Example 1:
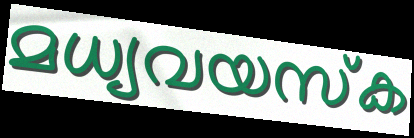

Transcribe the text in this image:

മധ്യവയസ്ക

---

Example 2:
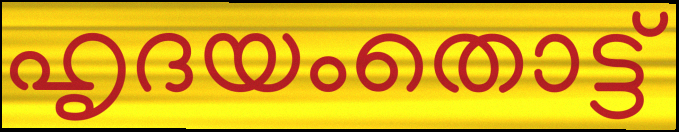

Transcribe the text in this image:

ഹൃദയംതൊട്ട്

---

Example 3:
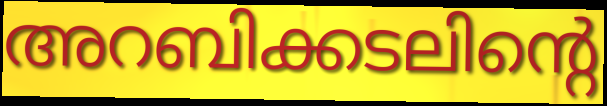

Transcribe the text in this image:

അറബിക്കടലിന്റെ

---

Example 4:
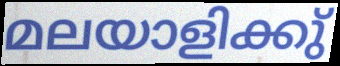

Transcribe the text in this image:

മലയാളിക്കു്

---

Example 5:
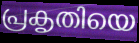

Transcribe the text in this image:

പ്രകൃതിയെ